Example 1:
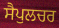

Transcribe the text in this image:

ਸੈਪੁਲਚਰ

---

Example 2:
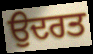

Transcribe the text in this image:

ਉਦਰਤ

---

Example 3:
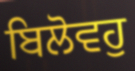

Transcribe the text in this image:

ਬਿਲੋਵਹੁ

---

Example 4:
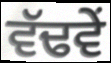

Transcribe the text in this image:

ਵੱਢਵੇਂ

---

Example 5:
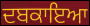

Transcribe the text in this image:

ਦਬਕਾਇਆ